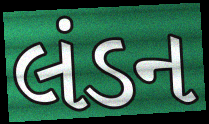
લંડન